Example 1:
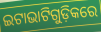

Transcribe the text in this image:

ଇଟାଭାଟିଗୁଡ଼ିକରେ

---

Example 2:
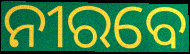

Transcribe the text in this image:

ନୀରବେ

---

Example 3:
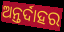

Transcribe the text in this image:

ଅନ୍ତର୍ଦାହର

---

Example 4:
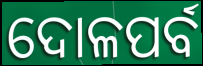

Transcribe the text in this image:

ଦୋଳପର୍ବ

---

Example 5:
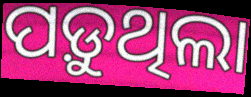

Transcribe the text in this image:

ପଡ଼ୁଥିଲା